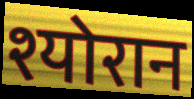
श्योरान